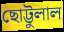
ছোট্টুলাল